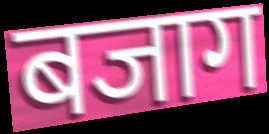
बजाग